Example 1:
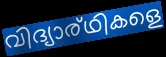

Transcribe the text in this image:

വിദ്യാര്ഥികളെ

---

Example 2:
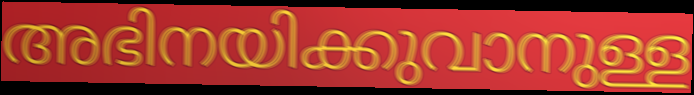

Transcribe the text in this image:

അഭിനയിക്കുവാനുള്ള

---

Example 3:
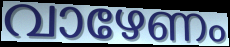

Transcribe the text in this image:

വാഴേണം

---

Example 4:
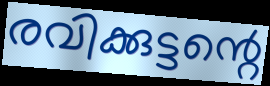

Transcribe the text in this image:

രവിക്കുട്ടന്റെ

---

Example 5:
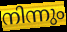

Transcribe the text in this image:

നിന്നും